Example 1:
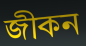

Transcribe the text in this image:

জীকন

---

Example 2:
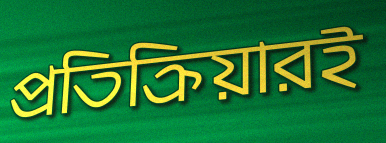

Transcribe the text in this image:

প্রতিক্রিয়ারই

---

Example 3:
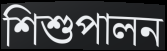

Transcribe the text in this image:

শিশুপালন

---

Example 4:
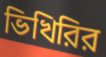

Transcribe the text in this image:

ভিখিরির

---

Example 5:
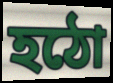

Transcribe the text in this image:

হঠো